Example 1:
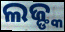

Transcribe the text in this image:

ଲଜ୍ଙ୍କ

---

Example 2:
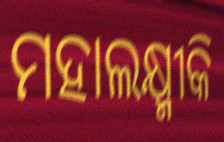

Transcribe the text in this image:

ମହାଲକ୍ଷ୍ମୀକି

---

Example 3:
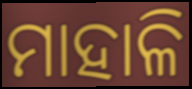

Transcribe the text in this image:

ମାହାଳି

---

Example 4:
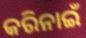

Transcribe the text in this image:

କରିନାଇଁ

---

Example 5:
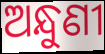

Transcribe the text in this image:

ଅନ୍ଧୁଣୀ